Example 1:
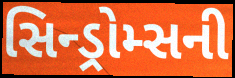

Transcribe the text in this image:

સિન્ડ્રોમ્સની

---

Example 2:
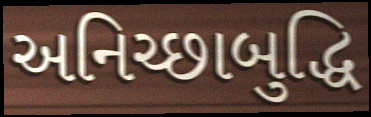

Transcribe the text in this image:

અનિચ્છાબુદ્ધિ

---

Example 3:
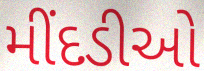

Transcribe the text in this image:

મીંદડીઓ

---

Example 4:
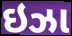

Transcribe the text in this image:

ઇઝા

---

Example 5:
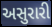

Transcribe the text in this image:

અસુરારી